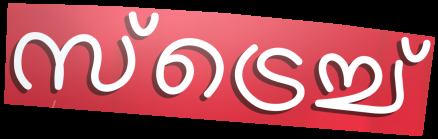
സ്ട്രെച്ച്